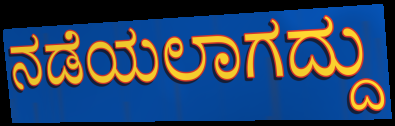
ನಡೆಯಲಾಗದ್ದು